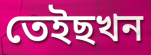
তেইছখন